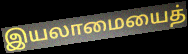
இயலாமையைத்